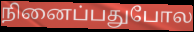
நினைப்பதுபோல